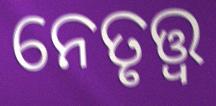
ନେତୃତ୍ତ୍ୱ